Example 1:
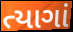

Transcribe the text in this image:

ત્યાગાં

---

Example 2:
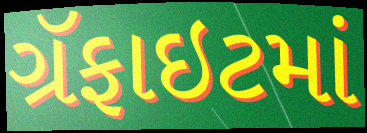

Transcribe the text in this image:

ગ્રૅફાઇટમાં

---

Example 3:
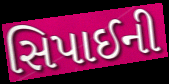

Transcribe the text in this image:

સિપાઈની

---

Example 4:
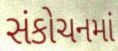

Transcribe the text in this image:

સંકોચનમાં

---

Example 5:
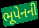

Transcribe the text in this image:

ભૂપેનની